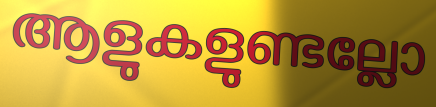
ആളുകളുണ്ടല്ലോ